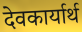
देवकार्यार्थ